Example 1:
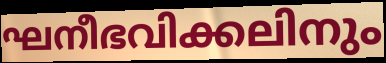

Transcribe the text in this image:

ഘനീഭവിക്കലിനും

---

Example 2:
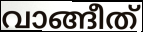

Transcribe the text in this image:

വാങ്ങീത്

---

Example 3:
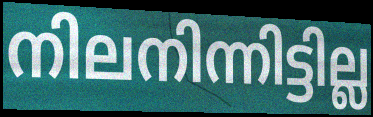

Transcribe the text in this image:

നിലനിന്നിട്ടില്ല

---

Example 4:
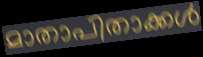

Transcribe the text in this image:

മാതാപിതാക്കൾ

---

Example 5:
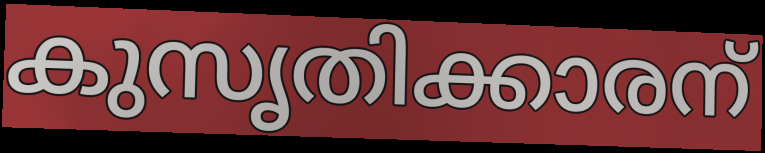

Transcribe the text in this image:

കുസൃതിക്കാരന്